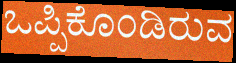
ಒಪ್ಪಿಕೊಂಡಿರುವ